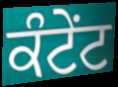
ਕੰਟੇਂਟ